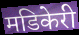
मडिकेरी